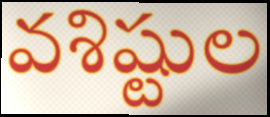
వశిష్టుల